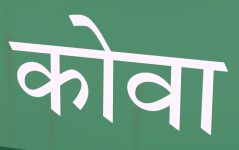
कोवा